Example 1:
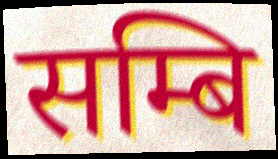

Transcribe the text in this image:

सम्बि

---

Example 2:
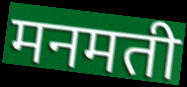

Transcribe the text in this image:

मनमती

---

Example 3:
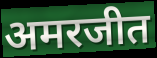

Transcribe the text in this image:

अमरजीत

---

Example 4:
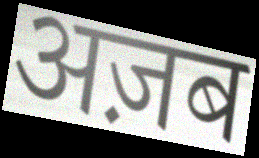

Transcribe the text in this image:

अज़ब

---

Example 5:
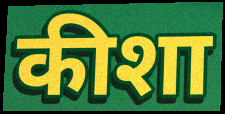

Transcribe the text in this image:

कीशा